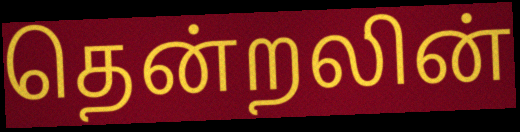
தென்றலின்